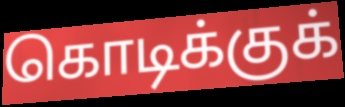
கொடிக்குக்